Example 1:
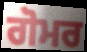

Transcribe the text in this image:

ਗੋਮਰ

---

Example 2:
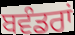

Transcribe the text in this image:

ਬਵੰਡਰਾਂ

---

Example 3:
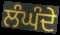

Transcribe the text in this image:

ਲੰਘੰਦੇ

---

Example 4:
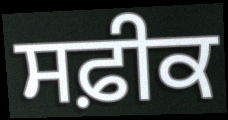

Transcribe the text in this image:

ਸਫ਼ੀਕ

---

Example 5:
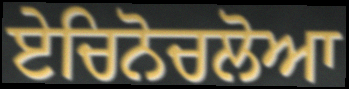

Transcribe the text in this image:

ਏਚਿਨੋਚਲੋਆ